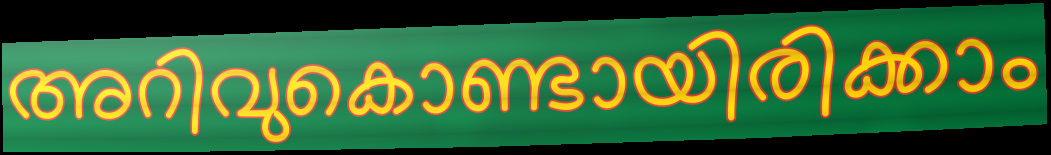
അറിവുകൊണ്ടായിരിക്കാം